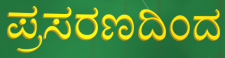
ಪ್ರಸರಣದಿಂದ